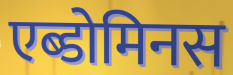
एब्डोमिनस